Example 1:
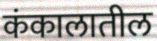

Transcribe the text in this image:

कंकालातील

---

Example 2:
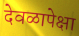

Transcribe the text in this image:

देवळापेक्षा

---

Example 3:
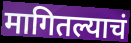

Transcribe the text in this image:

मागितल्याचं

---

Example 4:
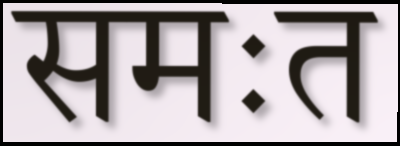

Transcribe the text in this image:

समःत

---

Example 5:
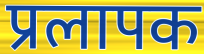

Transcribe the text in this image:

प्रलापक